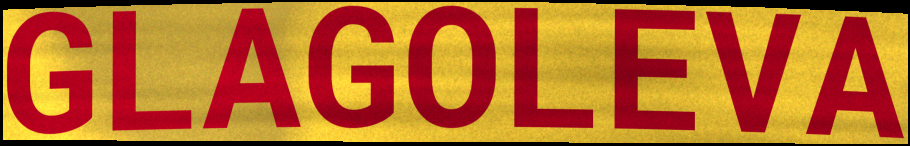
GLAGOLEVA